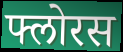
फ्लोरस